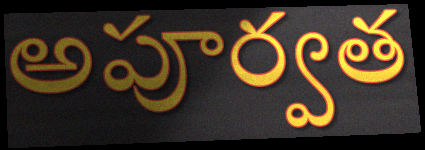
అపూర్వత